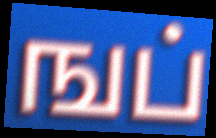
ஙப்